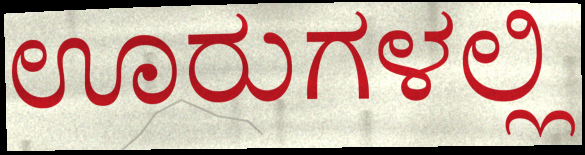
ಊರುಗಳಲ್ಲಿ